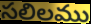
సలిలము